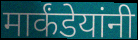
मार्कंडेयांनी